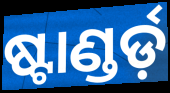
ଷ୍ଟାଣ୍ଡର୍ଡ଼